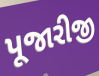
પૂજારીજી